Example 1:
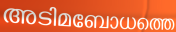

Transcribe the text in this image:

അടിമബോധത്തെ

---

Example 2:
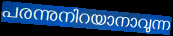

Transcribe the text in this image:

പരന്നുനിറയാനാവുന്ന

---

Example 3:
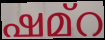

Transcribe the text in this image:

ഷമ്റ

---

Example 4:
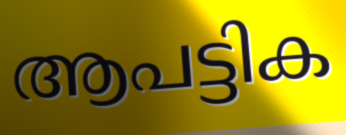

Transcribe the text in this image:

ആപട്ടിക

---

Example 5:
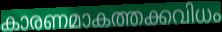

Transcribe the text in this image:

കാരണമാകത്തക്കവിധം